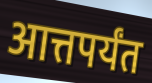
आत्तपर्यंत